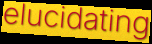
elucidating